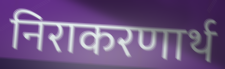
निराकरणार्थ